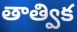
తాత్విక